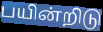
பயின்றிடு